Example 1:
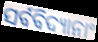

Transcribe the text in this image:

ସର୍ବବିଦ୍ୟାନାଂ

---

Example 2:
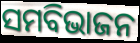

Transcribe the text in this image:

ସମବିଭାଜନ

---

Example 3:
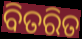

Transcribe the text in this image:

ବିତରିତ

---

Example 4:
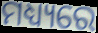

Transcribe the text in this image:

ମଧ୍ୟ୍ୟରେ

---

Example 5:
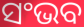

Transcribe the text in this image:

ସଂଭବ